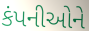
કંપનીઓને